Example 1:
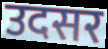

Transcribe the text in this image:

उदसर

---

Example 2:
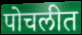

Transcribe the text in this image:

पोचलीत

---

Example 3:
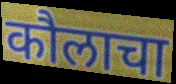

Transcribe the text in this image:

कौलाचा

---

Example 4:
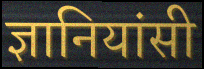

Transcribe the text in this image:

ज्ञानियांसी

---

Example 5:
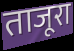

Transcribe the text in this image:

ताजूरा